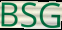
BSG